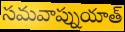
సమవాప్నుయాత్